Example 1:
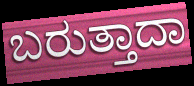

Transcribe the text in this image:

ಬರುತ್ತಾದಾ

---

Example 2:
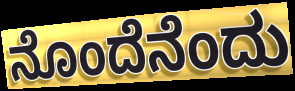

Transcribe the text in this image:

ನೊಂದೆನೆಂದು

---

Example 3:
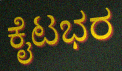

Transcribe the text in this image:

ಕೈಟಭರ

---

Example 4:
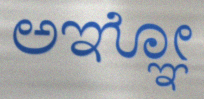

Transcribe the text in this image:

ಅಞ್ಞೋ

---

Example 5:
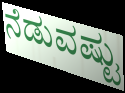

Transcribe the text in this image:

ನೆಡುವಷ್ಟು